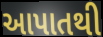
આપાતથી